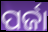
ପର୍ଜା